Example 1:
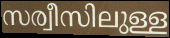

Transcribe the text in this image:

സര്വീസിലുള്ള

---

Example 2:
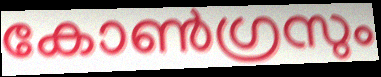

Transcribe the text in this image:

കോൺഗ്രസും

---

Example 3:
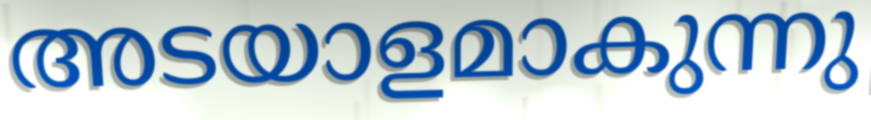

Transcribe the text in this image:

അടയാളമാകുന്നു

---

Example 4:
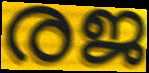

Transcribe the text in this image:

രജ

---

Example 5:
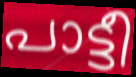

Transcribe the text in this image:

പാട്ടീ